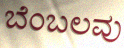
ಬೆಂಬಲವು